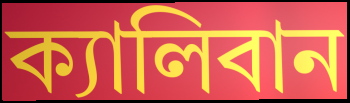
ক্যালিবান